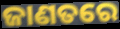
ଜାଣତରେ